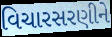
વિચારસરણીને